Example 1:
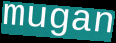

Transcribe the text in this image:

mugan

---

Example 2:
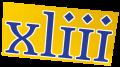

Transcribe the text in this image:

xliii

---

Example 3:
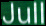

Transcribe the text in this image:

Jull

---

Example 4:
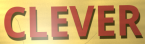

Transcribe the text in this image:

CLEVER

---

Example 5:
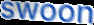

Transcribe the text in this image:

swoon